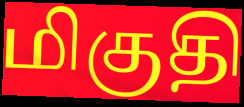
மிகுதி